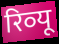
रिव्‍यू